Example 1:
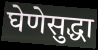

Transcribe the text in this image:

घेणेसुद्धा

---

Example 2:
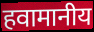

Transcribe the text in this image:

हवामानीय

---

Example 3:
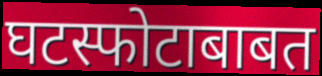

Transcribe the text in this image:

घटस्फोटाबाबत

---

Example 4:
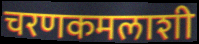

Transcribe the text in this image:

चरणकमलाशी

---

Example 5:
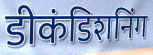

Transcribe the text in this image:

डीकंडिशनिंग